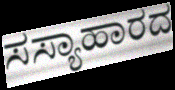
ಸಸ್ಯಾಹಾರದ